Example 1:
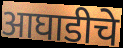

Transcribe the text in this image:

आघाडीचे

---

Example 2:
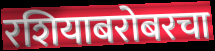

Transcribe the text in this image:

रशियाबरोबरचा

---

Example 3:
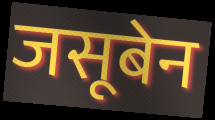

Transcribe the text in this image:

जसूबेन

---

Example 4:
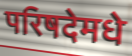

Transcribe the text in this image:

परिषदेमधे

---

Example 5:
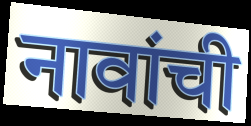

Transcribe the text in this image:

नावांची